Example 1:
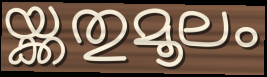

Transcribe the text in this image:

യ്ക്കതുമൂലം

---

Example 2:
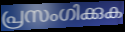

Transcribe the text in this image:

പ്രസംഗിക്കുക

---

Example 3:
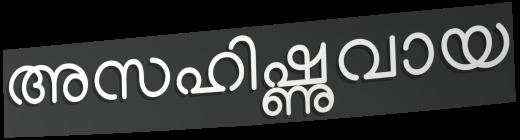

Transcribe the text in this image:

അസഹിഷ്ണുവായ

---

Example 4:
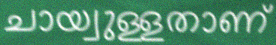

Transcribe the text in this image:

ചായ്വുള്ളതാണ്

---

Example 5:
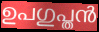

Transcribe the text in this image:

ഉപഗുപ്തൻ